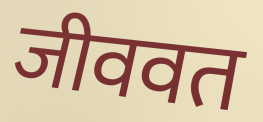
जीववत